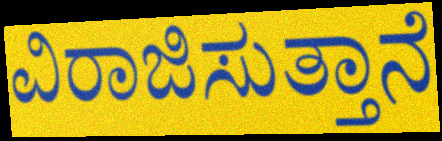
ವಿರಾಜಿಸುತ್ತಾನೆ